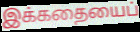
இக்கதையைப்